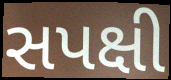
સપક્ષી